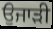
ਉਜਾੜੀ